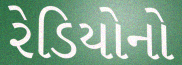
રેડિયોનો